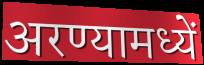
अरण्यामध्यें